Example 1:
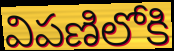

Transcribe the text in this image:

విపణిలోకి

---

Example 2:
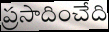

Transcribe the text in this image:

ప్రసాదించేది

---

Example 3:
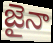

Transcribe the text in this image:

జైనా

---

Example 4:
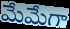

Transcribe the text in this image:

మేమేగా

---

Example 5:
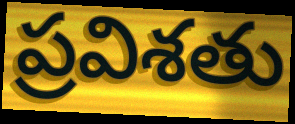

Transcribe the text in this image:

ప్రవిశతు